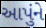
આપુંને